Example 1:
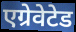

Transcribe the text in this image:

एग्रेवेटेड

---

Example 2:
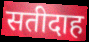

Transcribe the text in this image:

सतीदाह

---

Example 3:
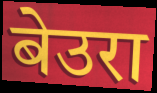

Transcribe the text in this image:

बेउरा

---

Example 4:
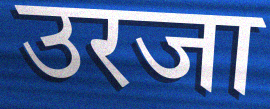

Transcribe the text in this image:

उरजा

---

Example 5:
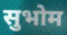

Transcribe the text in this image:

सुभोम